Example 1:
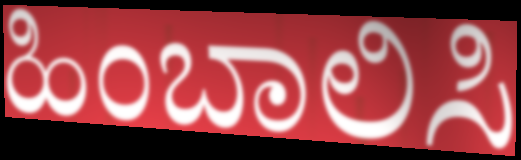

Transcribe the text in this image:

ಹಿಂಬಾಲಿಸಿ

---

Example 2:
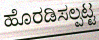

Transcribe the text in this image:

ಹೊರಡಿಸಲ್ಪಟ್ಟ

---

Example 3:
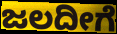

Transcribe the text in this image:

ಜಲದೀಗೆ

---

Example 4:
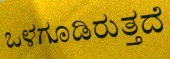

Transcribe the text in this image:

ಒಳಗೂಡಿರುತ್ತದೆ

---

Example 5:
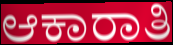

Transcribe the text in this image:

ಆಕಾರಾತಿ